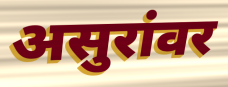
असुरांवर